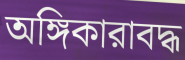
অঙ্গিকারাবদ্ধ